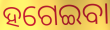
ହଗେଇବା